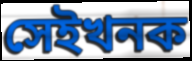
সেইখনক